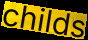
childs